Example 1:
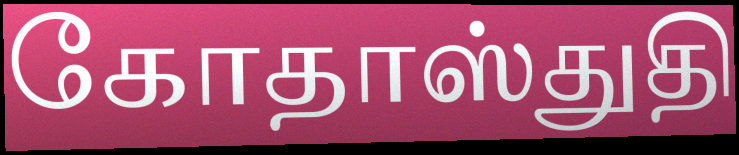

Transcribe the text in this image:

கோதாஸ்துதி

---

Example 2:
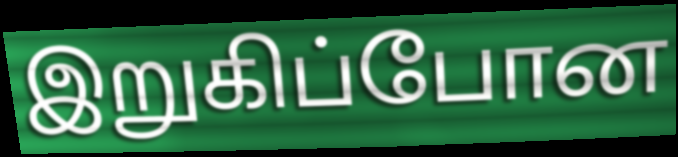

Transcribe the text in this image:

இறுகிப்போன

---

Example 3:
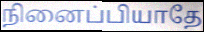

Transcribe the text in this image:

நினைப்பியாதே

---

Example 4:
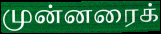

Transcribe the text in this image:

முன்னரைக்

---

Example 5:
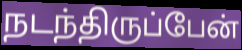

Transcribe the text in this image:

நடந்திருப்பேன்